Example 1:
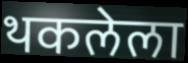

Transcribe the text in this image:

थकलेला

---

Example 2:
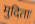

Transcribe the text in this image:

मुदिताः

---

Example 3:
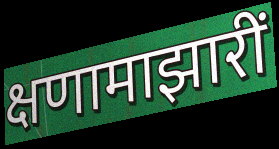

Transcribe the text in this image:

क्षणामाझारीं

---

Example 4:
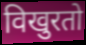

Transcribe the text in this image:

विखुरतो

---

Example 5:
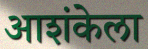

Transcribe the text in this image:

आशंकेला